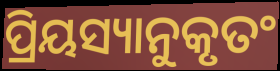
ପ୍ରିୟସ୍ୟାନୁକୃତଂ